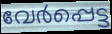
വേർപ്പെട്ട